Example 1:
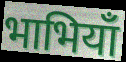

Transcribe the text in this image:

भाभियाँ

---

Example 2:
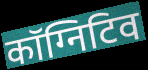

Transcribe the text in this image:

कॉग्निटिव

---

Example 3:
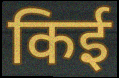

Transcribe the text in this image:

किई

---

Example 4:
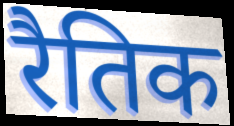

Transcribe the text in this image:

रैतिक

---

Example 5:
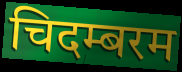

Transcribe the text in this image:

चिदम्बरम